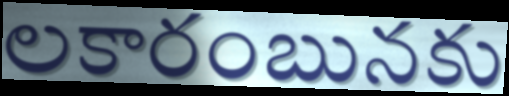
లకారంబునకు